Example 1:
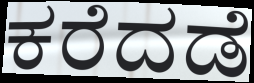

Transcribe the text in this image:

ಕರೆದಡೆ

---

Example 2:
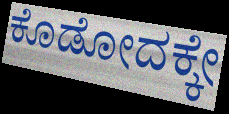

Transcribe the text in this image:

ಕೊಡೋದಕ್ಕೇ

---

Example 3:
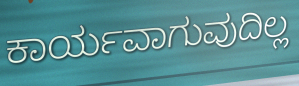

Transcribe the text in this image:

ಕಾರ್ಯವಾಗುವುದಿಲ್ಲ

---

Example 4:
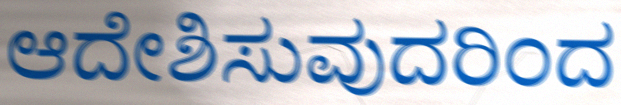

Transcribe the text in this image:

ಆದೇಶಿಸುವುದರಿಂದ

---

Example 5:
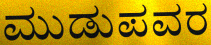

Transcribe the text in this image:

ಮುಡುಪವರ